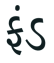
ફંડ